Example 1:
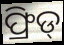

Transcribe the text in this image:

ଫ୍ରିଡ୍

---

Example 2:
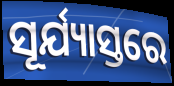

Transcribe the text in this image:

ସୂର୍ଯ୍ୟାସ୍ତରେ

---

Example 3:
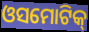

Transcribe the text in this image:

ଓସମୋଟିକ୍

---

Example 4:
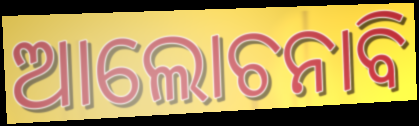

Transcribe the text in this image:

ଆଲୋଚନାବି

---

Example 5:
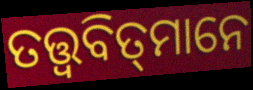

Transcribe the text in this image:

ତତ୍ତ୍ୱବିତ୍‌ମାନେ